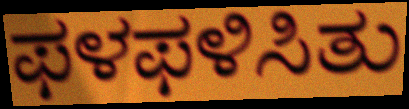
ಫಳಫಳಿಸಿತು